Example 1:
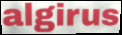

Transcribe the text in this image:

algirus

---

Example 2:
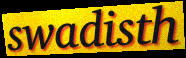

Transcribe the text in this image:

swadisth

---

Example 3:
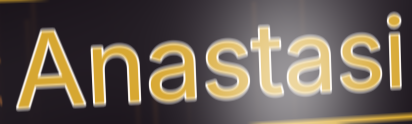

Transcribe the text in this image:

Anastasi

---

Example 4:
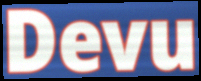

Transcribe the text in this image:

Devu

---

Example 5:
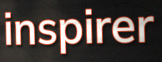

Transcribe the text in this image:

inspirer